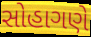
સોહાગણે